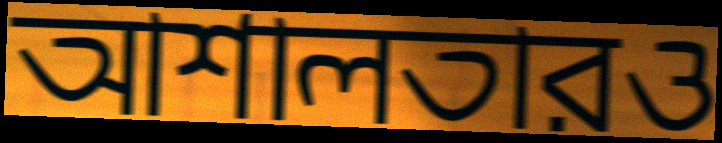
আশালতারও